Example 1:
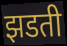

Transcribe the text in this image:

झडती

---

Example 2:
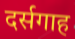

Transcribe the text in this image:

दर्सगाह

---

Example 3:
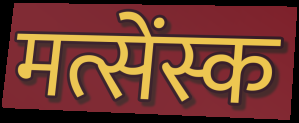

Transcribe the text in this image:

मत्सेंस्क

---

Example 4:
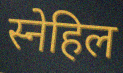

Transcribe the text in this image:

स्नेहिल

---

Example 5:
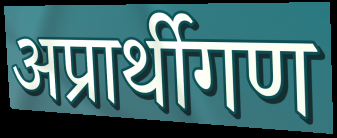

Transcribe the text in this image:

अप्रार्थीगण